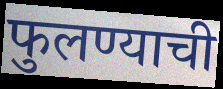
फुलण्याची